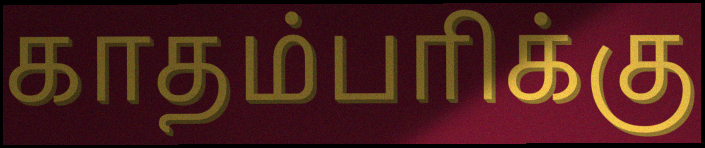
காதம்பரிக்கு